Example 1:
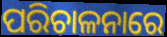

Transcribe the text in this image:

ପରିଚାଳନାରେ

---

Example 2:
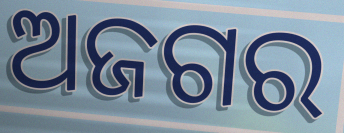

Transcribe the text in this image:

ଅଜଗର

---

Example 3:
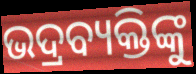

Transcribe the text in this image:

ଭଦ୍ରବ୍ୟକ୍ତିଙ୍କୁ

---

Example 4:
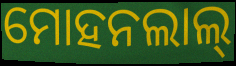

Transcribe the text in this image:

ମୋହନଲାଲ୍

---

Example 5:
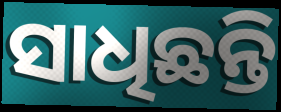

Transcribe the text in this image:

ସାଧିଛନ୍ତି